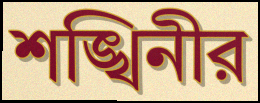
শঙ্খিনীর